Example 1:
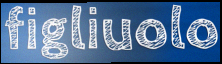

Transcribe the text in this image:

figliuolo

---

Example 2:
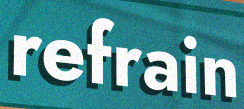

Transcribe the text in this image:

refrain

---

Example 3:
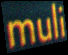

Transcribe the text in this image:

muli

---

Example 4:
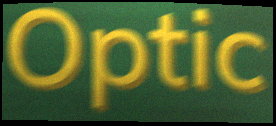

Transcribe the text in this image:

Optic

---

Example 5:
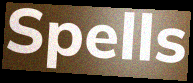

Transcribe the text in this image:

Spells